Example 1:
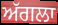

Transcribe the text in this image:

ਅੱਗਲਾ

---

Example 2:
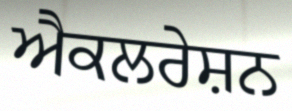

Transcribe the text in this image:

ਐਕਲਰੇਸ਼ਨ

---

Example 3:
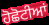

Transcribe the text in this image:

ਹੋਛੋਟੀਆਂ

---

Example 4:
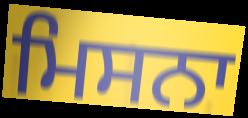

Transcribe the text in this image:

ਮਿਸਨਾ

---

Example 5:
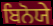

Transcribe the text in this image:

ਬਿਨੋਯੇ